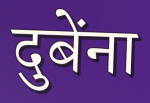
दुबेंना